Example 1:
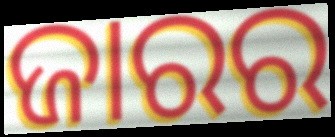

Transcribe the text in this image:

ଜାରର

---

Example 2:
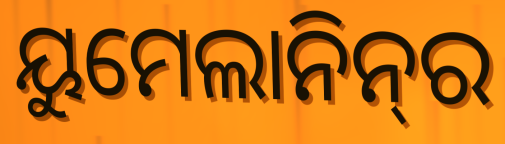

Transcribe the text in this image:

ୟୁମେଲାନିନ୍‌ର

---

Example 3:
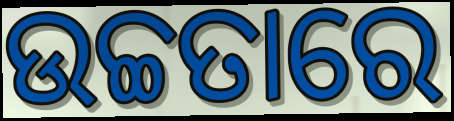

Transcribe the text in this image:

ଉଚ୍ଚତାରେ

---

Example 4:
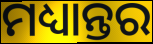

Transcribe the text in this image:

ମଧ୍ୟାନ୍ତର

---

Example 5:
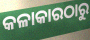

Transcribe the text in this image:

କଳାକାରଠାରୁ